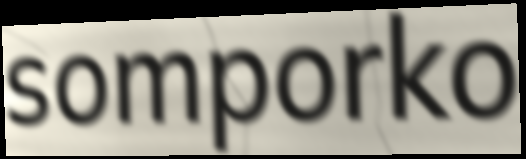
somporko